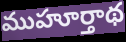
ముహూర్తాథ